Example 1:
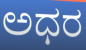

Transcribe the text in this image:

ಅಧರ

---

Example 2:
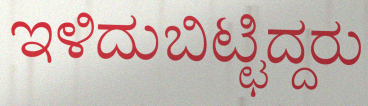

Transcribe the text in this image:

ಇಳಿದುಬಿಟ್ಟಿದ್ದರು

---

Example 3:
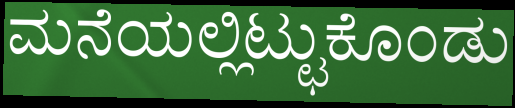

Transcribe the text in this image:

ಮನೆಯಲ್ಲಿಟ್ಟುಕೊಂಡು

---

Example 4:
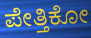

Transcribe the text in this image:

ಪೇತ್ತಿಕೋ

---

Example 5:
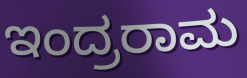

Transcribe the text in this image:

ಇಂದ್ರರಾಮ